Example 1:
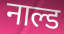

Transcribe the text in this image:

नाल्ड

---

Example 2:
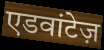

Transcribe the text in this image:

एडवांटेज़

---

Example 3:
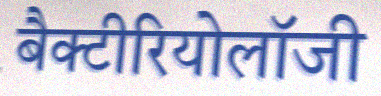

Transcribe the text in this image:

बैक्टीरियोलॉजी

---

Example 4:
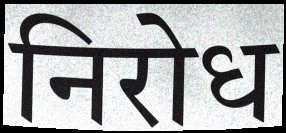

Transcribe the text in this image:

निरोध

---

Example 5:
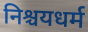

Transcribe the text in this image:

निश्चयधर्म